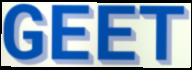
GEET